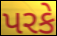
પરકે